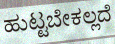
ಹುಟ್ಟಬೇಕಲ್ಲದೆ